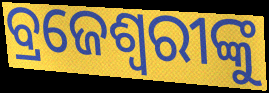
ବ୍ରଜେଶ୍ୱରୀଙ୍କୁ